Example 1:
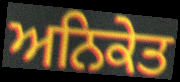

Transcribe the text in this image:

ਅਨਿਕੇਤ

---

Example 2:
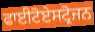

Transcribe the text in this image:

ਫਾਈਟੋਏਸਟ੍ਰੋਜਨ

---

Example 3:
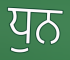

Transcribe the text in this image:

ਧੁਨ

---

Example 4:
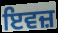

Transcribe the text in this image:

ਇਵਜ਼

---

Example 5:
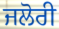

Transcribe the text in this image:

ਜਲੋਰੀ